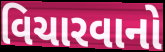
વિચારવાનો